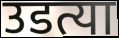
उडत्या